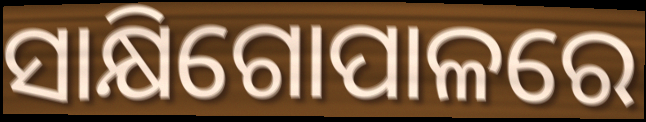
ସାକ୍ଷିଗୋପାଳରେ